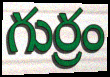
గుర్రం